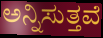
ಅನ್ನಿಸುತ್ತವೆ